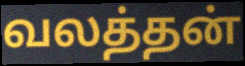
வலத்தன்